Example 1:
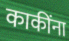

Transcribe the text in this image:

काकींना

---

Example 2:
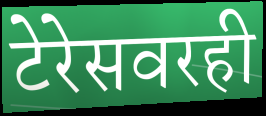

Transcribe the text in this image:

टेरेसवरही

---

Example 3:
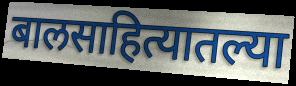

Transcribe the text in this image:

बालसाहित्यातल्या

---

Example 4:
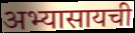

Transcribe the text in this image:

अभ्यासायची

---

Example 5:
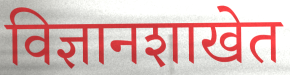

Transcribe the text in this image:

विज्ञानशाखेत